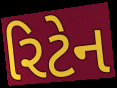
રિટેન